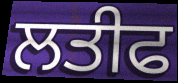
ਲਤੀਫ